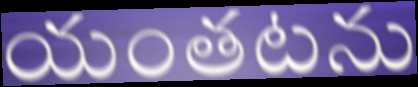
యంతటను